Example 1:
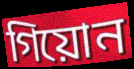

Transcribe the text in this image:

গিয়োন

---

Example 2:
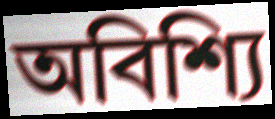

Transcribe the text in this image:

অবিশ্যি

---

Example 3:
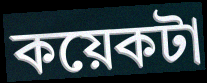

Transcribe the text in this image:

কয়েকটা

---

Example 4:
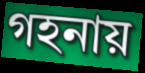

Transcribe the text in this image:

গহনায়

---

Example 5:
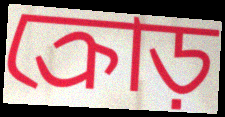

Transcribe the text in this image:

ক্রোড়